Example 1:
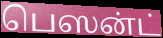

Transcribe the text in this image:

பெஸன்ட்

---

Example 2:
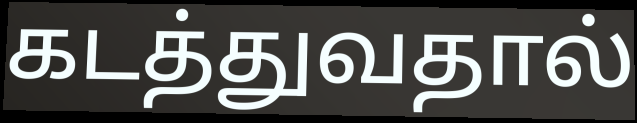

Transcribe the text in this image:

கடத்துவதால்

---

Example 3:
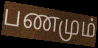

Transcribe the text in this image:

பணமும்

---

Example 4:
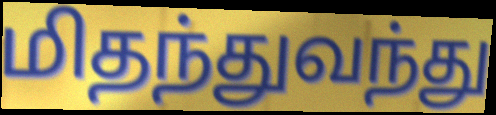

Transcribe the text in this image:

மிதந்துவந்து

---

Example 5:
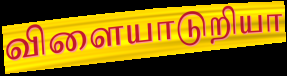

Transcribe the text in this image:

விளையாடுறியா